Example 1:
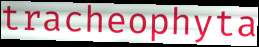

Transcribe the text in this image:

tracheophyta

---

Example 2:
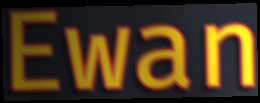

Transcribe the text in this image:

Ewan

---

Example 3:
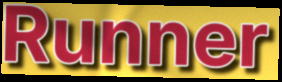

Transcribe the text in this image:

Runner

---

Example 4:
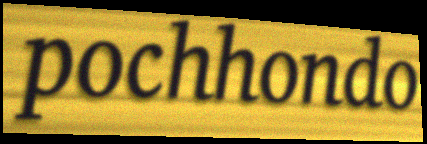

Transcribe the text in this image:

pochhondo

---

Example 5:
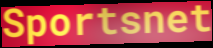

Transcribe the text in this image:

Sportsnet